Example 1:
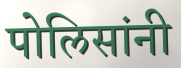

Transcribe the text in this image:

पोलिसांनी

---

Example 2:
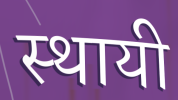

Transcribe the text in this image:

स्थायी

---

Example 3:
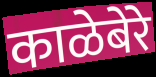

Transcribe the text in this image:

काळेबेरे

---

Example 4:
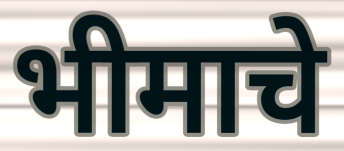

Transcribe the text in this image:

भीमाचे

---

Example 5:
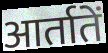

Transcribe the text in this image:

आर्तातें